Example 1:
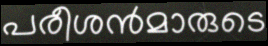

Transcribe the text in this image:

പരീശൻമാരുടെ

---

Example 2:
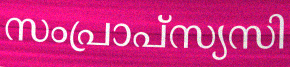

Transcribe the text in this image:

സംപ്രാപ്സ്യസി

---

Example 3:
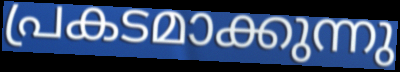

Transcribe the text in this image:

പ്രകടമാക്കുന്നു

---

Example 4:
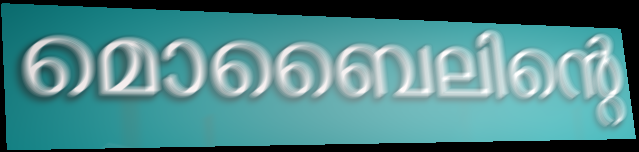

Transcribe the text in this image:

മൊബൈലിന്റെ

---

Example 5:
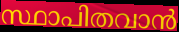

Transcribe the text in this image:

സ്ഥാപിതവാൻ